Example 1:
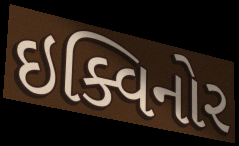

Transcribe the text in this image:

ઇક્વિનોર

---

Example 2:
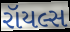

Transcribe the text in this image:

રૉયલ્સ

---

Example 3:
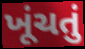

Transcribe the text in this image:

ખૂંચતું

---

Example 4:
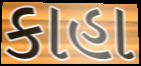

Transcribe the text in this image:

કાહા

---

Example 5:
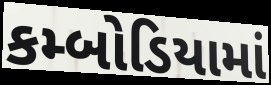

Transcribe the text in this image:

કમ્બોડિયામાં